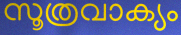
സൂത്രവാക്യം